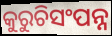
କୁରୁଚିସଂପନ୍ନ